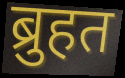
ब्रुहत